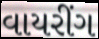
વાયરીંગ